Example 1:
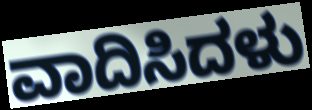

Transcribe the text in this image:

ವಾದಿಸಿದಳು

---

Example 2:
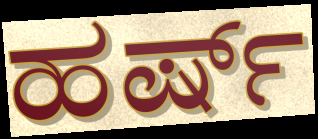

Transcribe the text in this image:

ಹರ್ಷ್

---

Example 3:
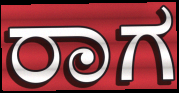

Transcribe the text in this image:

ರಾಗ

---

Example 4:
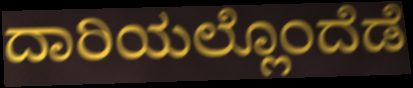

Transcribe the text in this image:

ದಾರಿಯಲ್ಲೊಂದೆಡೆ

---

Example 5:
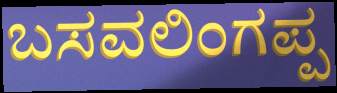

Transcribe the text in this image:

ಬಸವಲಿಂಗಪ್ಪ